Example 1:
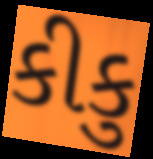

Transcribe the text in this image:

કીકુ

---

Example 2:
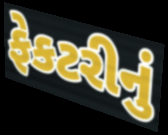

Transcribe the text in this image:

ફેકટરીનું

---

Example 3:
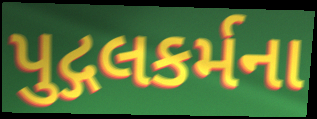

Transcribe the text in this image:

પુદ્ગલકર્મના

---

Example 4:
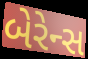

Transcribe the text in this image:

બેરેન્સ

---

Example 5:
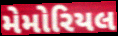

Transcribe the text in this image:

મેમોરિયલ